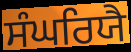
ਸੰਘਰਿਯੈ